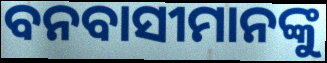
ବନବାସୀମାନଙ୍କୁ